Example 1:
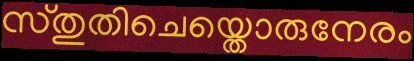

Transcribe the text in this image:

സ്തുതിചെയ്തൊരുനേരം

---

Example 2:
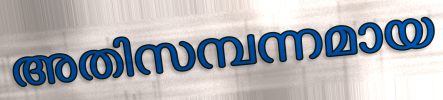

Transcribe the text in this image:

അതിസമ്പന്നമായ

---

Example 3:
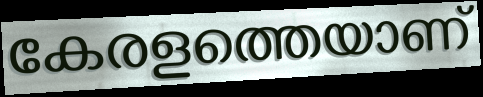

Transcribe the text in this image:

കേരളത്തെയാണ്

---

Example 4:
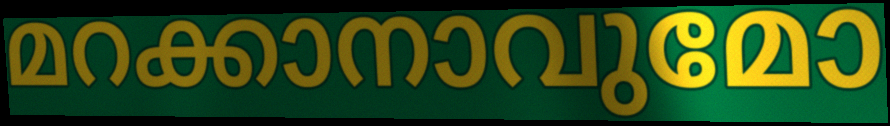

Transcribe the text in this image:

മറക്കാനാവുമോ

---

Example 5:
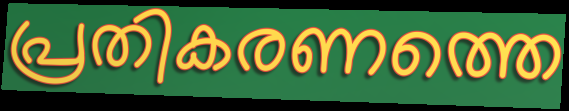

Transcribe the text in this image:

പ്രതികരണത്തെ